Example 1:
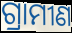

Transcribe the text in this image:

ଗ୍ରାମୀଣ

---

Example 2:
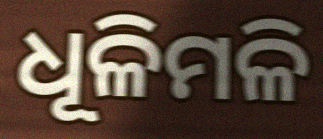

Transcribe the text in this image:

ଧୂଳିମଳି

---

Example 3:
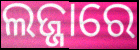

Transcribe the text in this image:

ଲଜ୍ଜାରେ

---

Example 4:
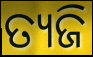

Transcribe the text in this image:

ତ୍ୟଜି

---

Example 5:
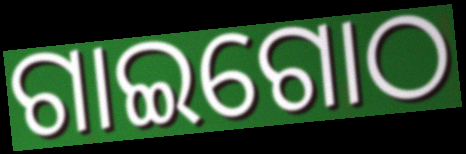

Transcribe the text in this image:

ଗାଇଗୋଠ